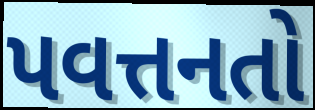
પવત્તનતો